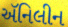
ઍનિલીન